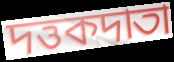
দত্তকদাতা